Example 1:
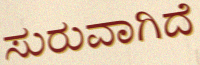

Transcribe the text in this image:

ಸುರುವಾಗಿದೆ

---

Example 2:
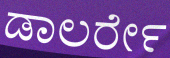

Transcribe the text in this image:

ಡಾಲರ್ರೇ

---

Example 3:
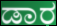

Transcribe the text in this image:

ಡಾರ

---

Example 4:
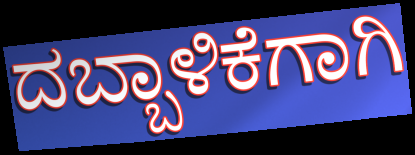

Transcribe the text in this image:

ದಬ್ಬಾಳಿಕೆಗಾಗಿ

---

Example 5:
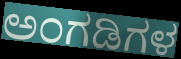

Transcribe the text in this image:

ಅಂಗಡಿಗಳ